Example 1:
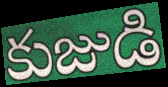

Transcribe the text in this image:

కుజుడి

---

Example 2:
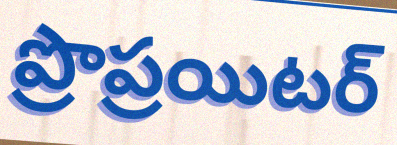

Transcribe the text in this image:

ప్రొప్రయిటర్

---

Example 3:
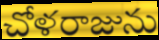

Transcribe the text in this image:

చోళరాజును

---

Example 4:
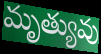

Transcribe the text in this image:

మృత్యువు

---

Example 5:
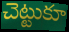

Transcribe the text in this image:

చెట్టుకూ